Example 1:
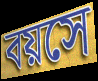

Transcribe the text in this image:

বয়সে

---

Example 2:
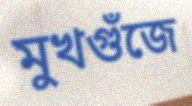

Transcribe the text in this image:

মুখগুঁজে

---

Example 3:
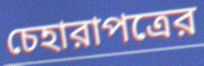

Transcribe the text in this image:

চেহারাপত্রের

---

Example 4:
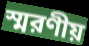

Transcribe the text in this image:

স্মরণীয়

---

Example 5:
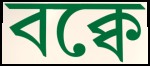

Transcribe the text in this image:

বক্বে